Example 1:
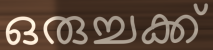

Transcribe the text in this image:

ഒരുച്ചക്ക്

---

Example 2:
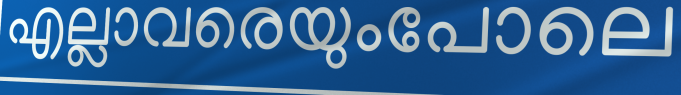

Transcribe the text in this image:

എല്ലാവരെയുംപോലെ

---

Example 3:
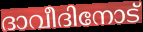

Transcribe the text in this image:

ദാവീദിനോട്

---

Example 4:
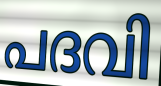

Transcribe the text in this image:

പദവി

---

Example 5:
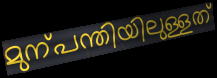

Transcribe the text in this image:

മുന്പന്തിയിലുള്ളത്